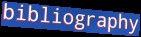
bibliography